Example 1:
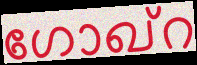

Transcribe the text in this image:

ഗോഖ്റ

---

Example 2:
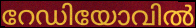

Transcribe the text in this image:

റേഡിയോവിൽ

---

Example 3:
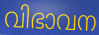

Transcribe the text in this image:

വിഭാവന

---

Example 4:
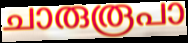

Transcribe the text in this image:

ചാരുരൂപാ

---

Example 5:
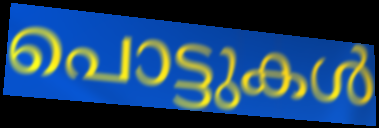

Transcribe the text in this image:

പൊട്ടുകൾ